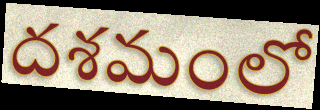
దశమంలో